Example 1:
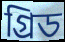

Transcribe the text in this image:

গ্রিড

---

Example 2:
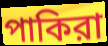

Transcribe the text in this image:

পাকিরা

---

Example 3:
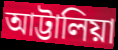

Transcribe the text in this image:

আট্টালিয়া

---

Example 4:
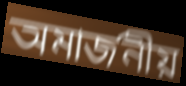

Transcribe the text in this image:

অমার্জনীয়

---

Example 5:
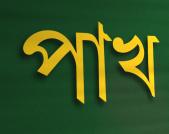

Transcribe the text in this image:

পাখ